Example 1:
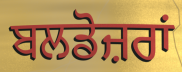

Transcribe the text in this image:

ਬਲਡੋਜ਼ਰਾਂ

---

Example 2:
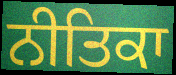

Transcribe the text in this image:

ਨੀਤਿਕਾ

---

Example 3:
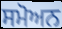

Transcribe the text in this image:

ਸਮੋਅਨ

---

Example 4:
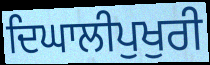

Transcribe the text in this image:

ਦਿਘਾਲੀਪੁਖੁਰੀ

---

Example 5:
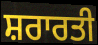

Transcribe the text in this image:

ਸ਼ਰਾਰਤੀ